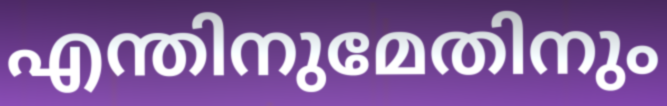
എന്തിനുമേതിനും